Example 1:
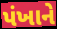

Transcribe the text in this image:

પંખાને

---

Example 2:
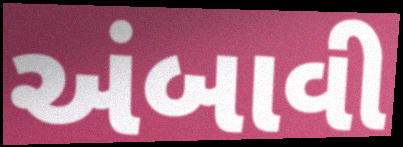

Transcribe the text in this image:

અંબાવી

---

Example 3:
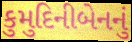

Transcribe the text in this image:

કુમુદિનીબેનનું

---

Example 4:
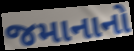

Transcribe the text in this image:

જમાનાનો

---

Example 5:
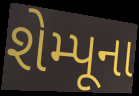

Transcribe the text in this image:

શેમ્પૂના